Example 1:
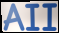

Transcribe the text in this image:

AII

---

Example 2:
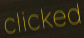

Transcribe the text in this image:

clicked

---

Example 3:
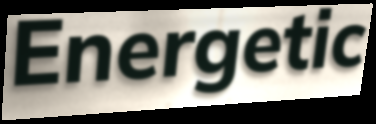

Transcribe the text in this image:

Energetic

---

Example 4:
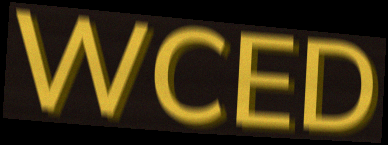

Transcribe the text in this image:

WCED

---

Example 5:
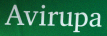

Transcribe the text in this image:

Avirupa